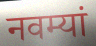
नवम्यां